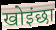
खोइंछा